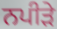
ਨਪੀੜੇ